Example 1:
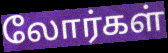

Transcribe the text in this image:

லோர்கள்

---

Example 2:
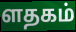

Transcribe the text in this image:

ளதகம்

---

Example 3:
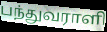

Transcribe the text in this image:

பந்துவராளி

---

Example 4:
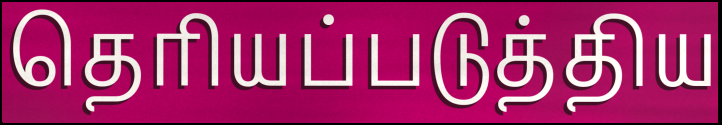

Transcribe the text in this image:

தெரியப்படுத்திய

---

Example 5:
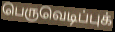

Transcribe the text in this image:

பெருவெடிப்புக்